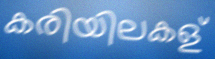
കരിയിലകള്